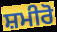
ਸ਼ਮੀਰੋ